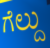
ಗೆಲ್ದು